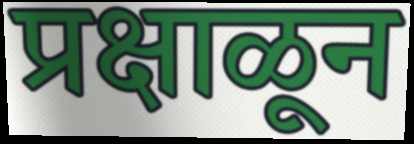
प्रक्षाळून